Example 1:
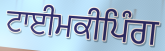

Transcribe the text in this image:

ਟਾਈਮਕੀਪਿੰਗ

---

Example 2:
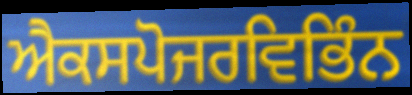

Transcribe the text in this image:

ਐਕਸਪੋਜਰਵਿਭਿੰਨ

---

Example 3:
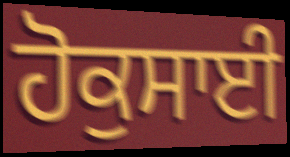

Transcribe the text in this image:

ਹੋਕੁਸਾਈ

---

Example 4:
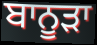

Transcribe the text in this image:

ਬਾਨੂੜਾ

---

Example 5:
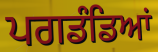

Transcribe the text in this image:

ਪਗਡੰਡਿਆਂ